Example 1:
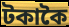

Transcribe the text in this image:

টকাকৈ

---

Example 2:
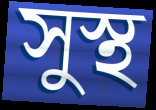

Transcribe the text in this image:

সুস্থ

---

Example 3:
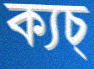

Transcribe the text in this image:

ক্যচ্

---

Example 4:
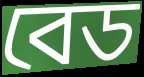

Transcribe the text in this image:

বেড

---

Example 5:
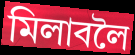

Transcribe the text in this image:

মিলাবলৈ